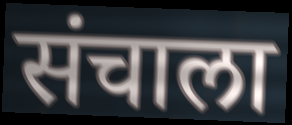
संचाला